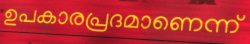
ഉപകാരപ്രദമാണെന്ന്